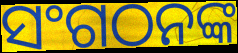
ସଂଗଠନଙ୍କ